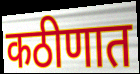
कठीणात